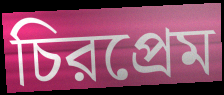
চিরপ্রেম